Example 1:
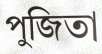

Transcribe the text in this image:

পুজিতা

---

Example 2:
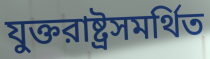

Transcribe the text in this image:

যুক্তরাষ্ট্রসমর্থিত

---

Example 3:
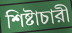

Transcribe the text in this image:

শিষ্টাচারী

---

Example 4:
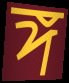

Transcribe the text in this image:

ঙ্গ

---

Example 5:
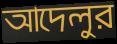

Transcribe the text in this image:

আদেলুর